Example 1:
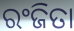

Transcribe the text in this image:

ରଂଜିତା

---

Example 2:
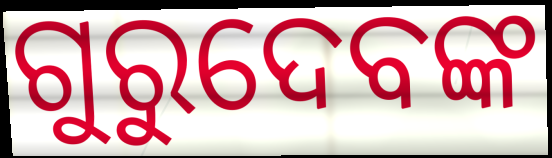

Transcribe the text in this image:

ଗୁରୁଦେବଙ୍କ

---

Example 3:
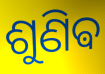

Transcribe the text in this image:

ଶୁଣିଵ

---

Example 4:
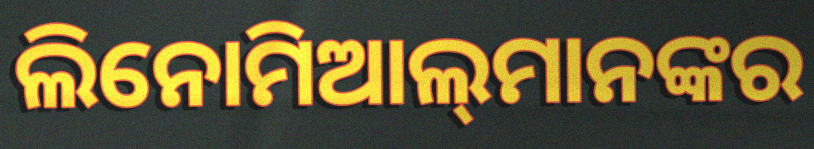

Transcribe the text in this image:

ଲିନୋମିଆଲ୍‌ମାନଙ୍କର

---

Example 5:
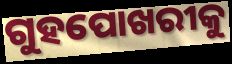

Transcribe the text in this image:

ଗୁହପୋଖରୀକୁ